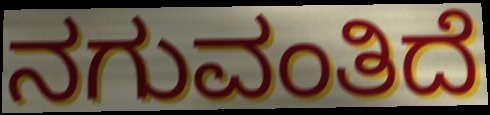
ನಗುವಂತಿದೆ